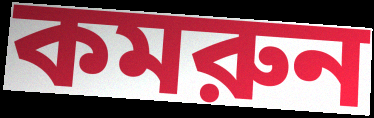
কমরুন